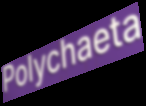
Polychaeta